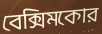
বেক্সিমকোর